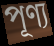
পূণ্য